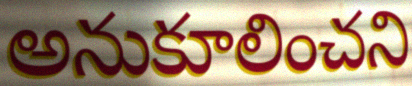
అనుకూలించని